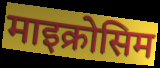
माइक्रोसिम